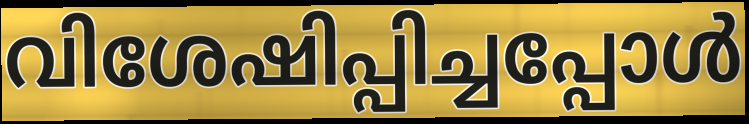
വിശേഷിപ്പിച്ചപ്പോൾ